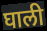
घाली